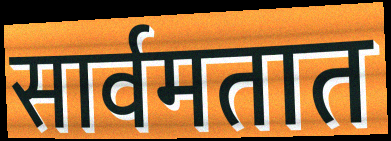
सार्वमतात